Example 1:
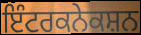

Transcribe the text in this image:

ਇੰਟਰਕਨੇਕਸ਼ਨ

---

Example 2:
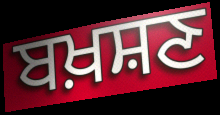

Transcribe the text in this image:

ਬਖ਼ਸ਼ਣ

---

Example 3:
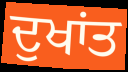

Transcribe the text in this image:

ਦੁਖਾਂਤ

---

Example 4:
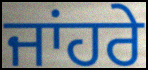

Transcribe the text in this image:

ਜਾਂਹਰੇ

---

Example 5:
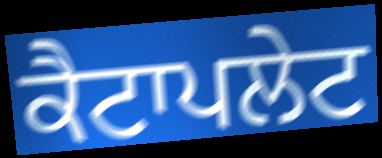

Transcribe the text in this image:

ਕੈਟਾਪਲੇਟ